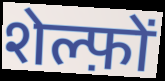
शेल्फ़ों